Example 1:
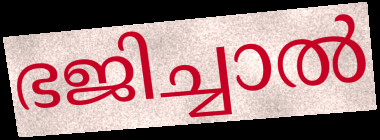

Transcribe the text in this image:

ഭജിച്ചാൽ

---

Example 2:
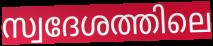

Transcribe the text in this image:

സ്വദേശത്തിലെ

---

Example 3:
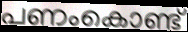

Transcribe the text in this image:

പണംകൊണ്ട്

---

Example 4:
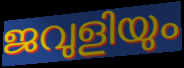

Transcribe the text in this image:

ജവുളിയും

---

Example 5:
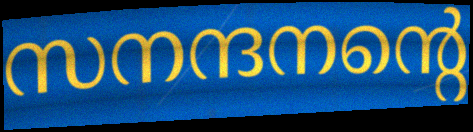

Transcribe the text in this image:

സനന്ദനന്റെ